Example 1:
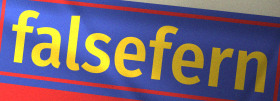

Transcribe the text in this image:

falsefern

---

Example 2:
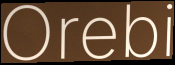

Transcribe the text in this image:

Orebi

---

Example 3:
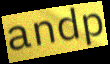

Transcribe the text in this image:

andp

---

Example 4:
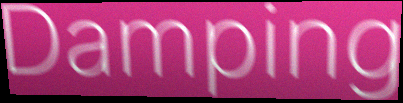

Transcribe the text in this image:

Damping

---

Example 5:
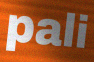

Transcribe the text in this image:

pali